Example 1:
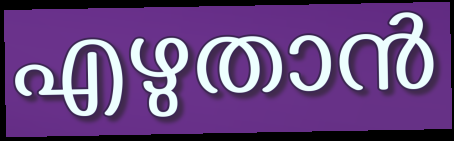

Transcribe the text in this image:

എഴുതാൻ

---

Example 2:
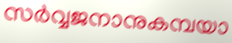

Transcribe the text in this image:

സർവ്വജനാനുകമ്പയാ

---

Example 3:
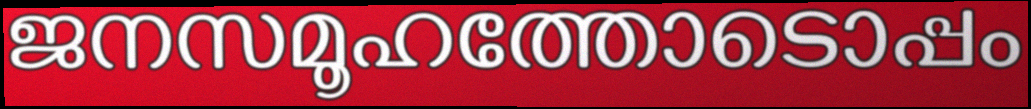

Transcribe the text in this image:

ജനസമൂഹത്തോടൊപ്പം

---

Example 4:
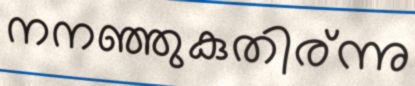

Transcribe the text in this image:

നനഞ്ഞുകുതിര്ന്നു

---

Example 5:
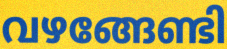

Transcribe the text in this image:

വഴങ്ങേണ്ടി